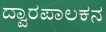
ದ್ವಾರಪಾಲಕನ